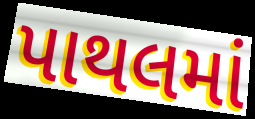
પાથલમાં